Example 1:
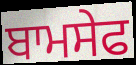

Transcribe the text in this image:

ਬਾਮਸੇਫ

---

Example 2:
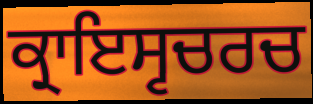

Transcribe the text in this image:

ਕ੍ਰਾਇਸ੍ਟਚਰਚ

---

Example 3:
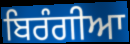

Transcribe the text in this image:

ਬਿਰੰਗੀਆ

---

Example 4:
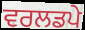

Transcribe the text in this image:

ਵਰਲਡਪੇ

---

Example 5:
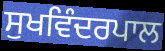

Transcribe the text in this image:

ਸੁਖਵਿੰਦਰਪਾਲ